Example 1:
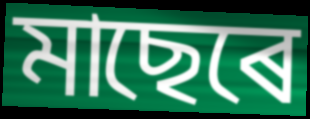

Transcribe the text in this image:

মাছেৰে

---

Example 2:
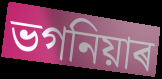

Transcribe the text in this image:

ভগনিয়াৰ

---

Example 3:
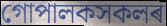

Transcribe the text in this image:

গোপালকসকলৰ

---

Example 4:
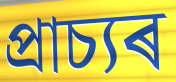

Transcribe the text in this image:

প্ৰাচ্যৰ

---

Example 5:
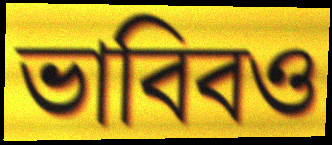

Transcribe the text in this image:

ভাবিবও